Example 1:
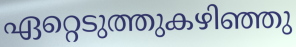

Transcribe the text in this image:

ഏറ്റെടുത്തുകഴിഞ്ഞു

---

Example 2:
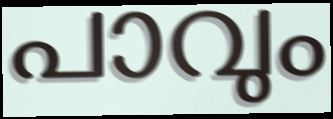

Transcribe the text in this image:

പാവും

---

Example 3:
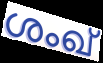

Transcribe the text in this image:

ശംഖ്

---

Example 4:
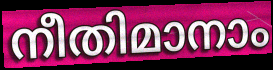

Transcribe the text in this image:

നീതിമാനാം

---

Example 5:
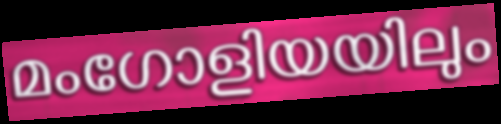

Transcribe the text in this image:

മംഗോളിയയിലും